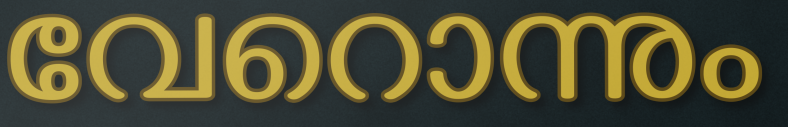
വേറൊന്നും